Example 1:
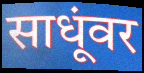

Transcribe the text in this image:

साधूंवर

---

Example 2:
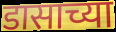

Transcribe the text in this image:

डासाच्या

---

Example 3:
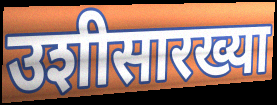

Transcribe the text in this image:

उशीसारख्या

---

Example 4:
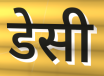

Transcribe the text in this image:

डेसी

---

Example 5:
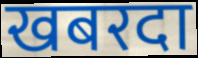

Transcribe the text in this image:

खबरदा